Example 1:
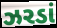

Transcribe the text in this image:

ઝરડાં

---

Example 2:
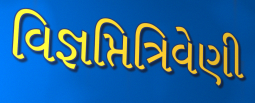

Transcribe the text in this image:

વિજ્ઞપ્તિત્રિવેણી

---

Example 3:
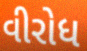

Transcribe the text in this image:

વીરોધ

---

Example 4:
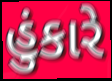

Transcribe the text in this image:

હુંકારે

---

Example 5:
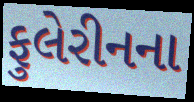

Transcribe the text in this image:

ફુલેરીનના